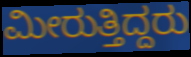
ಮೀರುತ್ತಿದ್ದರು